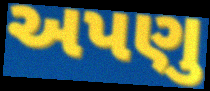
અપણુ